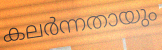
കലർന്നതായും